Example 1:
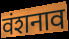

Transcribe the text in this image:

वंशनाव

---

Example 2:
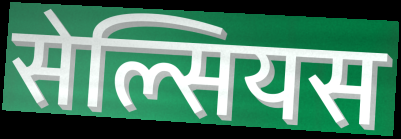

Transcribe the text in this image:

सेल्सियस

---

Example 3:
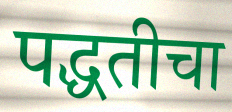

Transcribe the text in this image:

पद्धतीचा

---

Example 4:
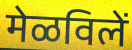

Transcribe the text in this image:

मेळविलें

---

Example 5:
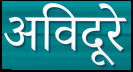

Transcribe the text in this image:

अविदूरे